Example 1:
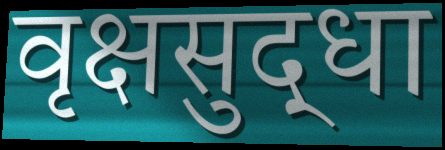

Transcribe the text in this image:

वृक्षसुद्धा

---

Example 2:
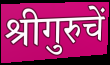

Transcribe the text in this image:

श्रीगुरुचें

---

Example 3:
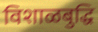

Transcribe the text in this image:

विशाळबुद्धि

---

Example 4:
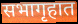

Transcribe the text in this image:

सभागृहात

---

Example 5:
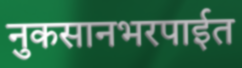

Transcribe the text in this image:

नुकसानभरपाईत